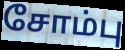
சோம்பு